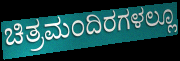
ಚಿತ್ರಮಂದಿರಗಳಲ್ಲೂ